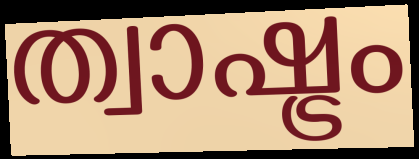
ത്വാഷ്ട്രം